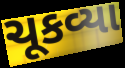
ચૂકવ્યા